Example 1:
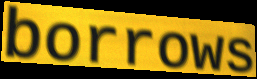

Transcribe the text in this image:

borrows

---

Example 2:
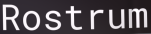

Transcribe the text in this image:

Rostrum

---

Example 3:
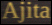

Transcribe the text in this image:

Ajita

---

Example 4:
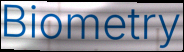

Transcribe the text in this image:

Biometry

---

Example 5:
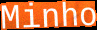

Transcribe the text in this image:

Minho